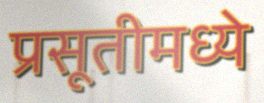
प्रसूतीमध्ये